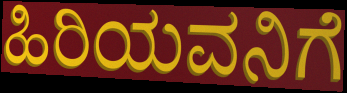
ಹಿರಿಯವನಿಗೆ